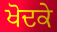
ਖੋਦਕੇ